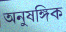
অনুষঙ্গিক